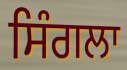
ਸਿੰਗਲਾ